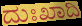
ದುಃಖಾದಿ